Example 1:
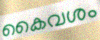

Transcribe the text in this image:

കൈവശം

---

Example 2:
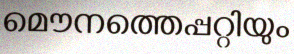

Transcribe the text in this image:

മൌനത്തെപ്പറ്റിയും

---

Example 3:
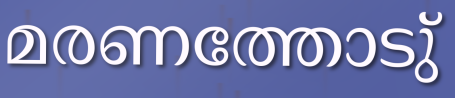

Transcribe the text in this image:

മരണത്തോടു്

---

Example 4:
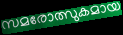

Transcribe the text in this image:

സമരോത്സുകമായ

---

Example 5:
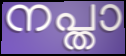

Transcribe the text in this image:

നപ്താ